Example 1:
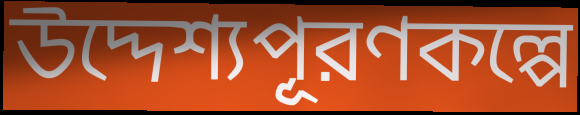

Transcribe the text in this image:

উদ্দেশ্যপূরণকল্পে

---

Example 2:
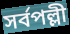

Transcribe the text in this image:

সর্বপল্লী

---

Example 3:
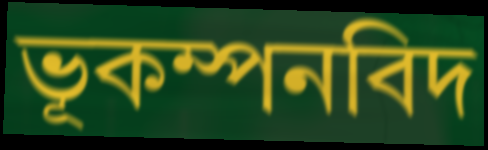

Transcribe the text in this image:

ভূকম্পনবিদ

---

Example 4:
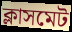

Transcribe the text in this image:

ক্লাসমেট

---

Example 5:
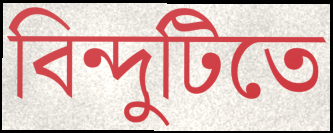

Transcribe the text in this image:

বিন্দুটিতে